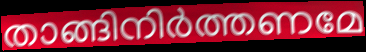
താങ്ങിനിർത്തണമേ